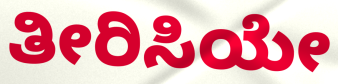
ತೀರಿಸಿಯೇ